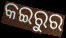
କଇରୁର